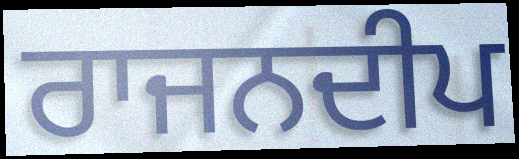
ਰਾਜਨਦੀਪ